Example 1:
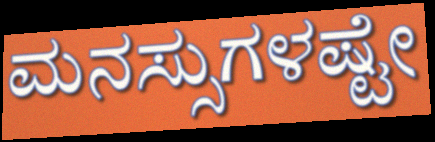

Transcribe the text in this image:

ಮನಸ್ಸುಗಳಷ್ಟೇ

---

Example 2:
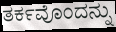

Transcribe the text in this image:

ತರ್ಕವೊಂದನ್ನು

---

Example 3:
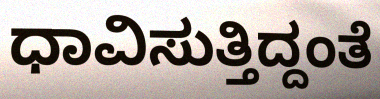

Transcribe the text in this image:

ಧಾವಿಸುತ್ತಿದ್ದಂತೆ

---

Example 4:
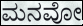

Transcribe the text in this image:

ಮನವೋ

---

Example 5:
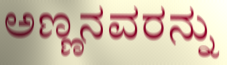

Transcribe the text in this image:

ಅಣ್ಣನವರನ್ನು